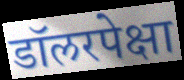
डॉलरपेक्षा